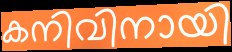
കനിവിനായി